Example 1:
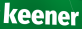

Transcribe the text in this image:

keener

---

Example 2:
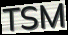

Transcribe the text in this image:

TSM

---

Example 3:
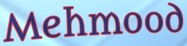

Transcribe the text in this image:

Mehmood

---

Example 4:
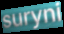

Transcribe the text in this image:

suryni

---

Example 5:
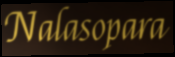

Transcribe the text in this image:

Nalasopara